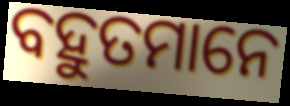
ବହୁତମାନେ